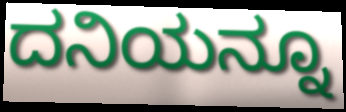
ದನಿಯನ್ನೂ